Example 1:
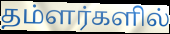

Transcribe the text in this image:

தம்ளர்களில்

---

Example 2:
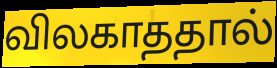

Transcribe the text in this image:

விலகாததால்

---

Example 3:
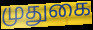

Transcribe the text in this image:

முதுகை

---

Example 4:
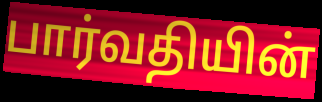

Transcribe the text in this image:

பார்வதியின்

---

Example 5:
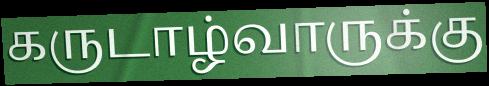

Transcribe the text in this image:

கருடாழ்வாருக்கு